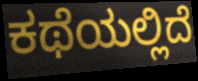
ಕಥೆಯಲ್ಲಿದೆ